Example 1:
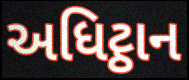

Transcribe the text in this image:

અધિટ્ઠાન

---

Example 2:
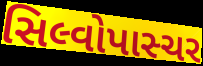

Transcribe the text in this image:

સિલ્વોપાસ્ચર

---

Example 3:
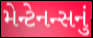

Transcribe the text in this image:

મેન્ટેનન્સનું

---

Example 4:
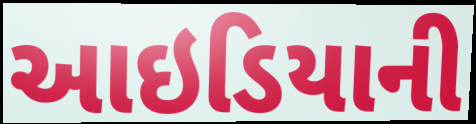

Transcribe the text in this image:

આઇડિયાની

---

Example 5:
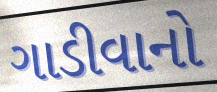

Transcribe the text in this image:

ગાડીવાનો